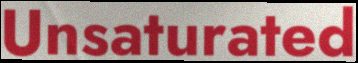
Unsaturated